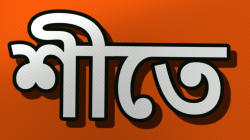
শীতে